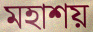
মহাশয়